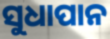
ସୁଧାପାନ